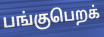
பங்குபெறக்